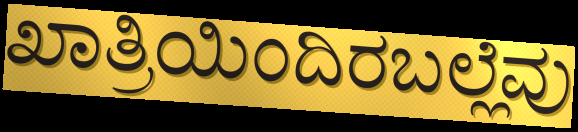
ಖಾತ್ರಿಯಿಂದಿರಬಲ್ಲೆವು